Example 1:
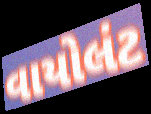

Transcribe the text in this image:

વાયોલંટ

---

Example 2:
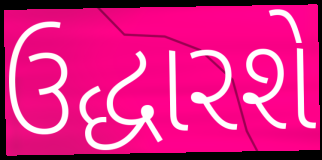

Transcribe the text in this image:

ઉદ્ધારશે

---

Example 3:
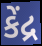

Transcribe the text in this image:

કેંદ્ર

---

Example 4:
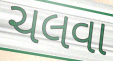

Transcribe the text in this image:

ચલવા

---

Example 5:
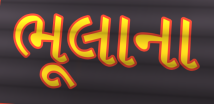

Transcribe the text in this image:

ભૂલાના